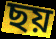
ছয়